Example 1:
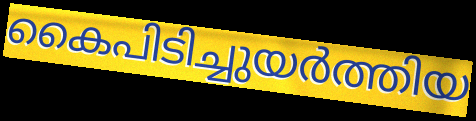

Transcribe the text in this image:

കൈപിടിച്ചുയർത്തിയ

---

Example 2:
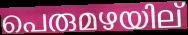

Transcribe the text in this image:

പെരുമഴയില്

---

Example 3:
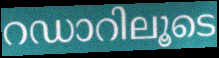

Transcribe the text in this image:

റഡാറിലൂടെ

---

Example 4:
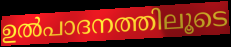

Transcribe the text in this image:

ഉൽപാദനത്തിലൂടെ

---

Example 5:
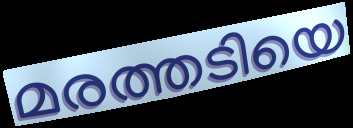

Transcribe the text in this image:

മരത്തടിയെ